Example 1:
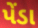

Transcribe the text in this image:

પેંડા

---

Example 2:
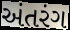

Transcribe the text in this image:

અંતરંગ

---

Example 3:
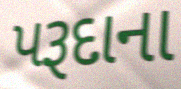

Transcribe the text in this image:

પરૂદાના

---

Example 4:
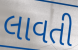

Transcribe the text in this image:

લાવતી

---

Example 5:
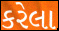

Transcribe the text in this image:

કરેલા